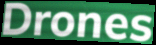
Drones